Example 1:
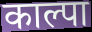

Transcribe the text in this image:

काल्पा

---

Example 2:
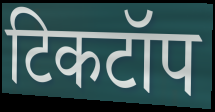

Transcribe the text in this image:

टिकटॉप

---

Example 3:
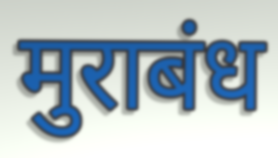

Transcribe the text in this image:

मुराबंध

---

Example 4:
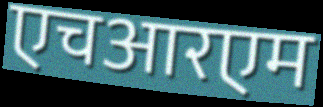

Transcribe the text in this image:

एचआरएम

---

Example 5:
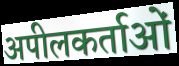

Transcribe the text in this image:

अपीलकर्ताओं